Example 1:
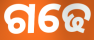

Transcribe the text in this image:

ଗଢେ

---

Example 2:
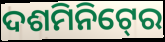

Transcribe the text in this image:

ଦଶମିନିଟ୍‍ରେ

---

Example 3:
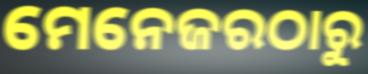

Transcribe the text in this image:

ମେନେଜରଠାରୁ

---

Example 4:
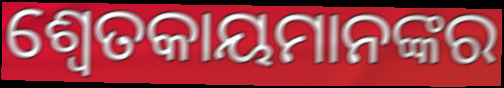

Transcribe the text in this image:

ଶ୍ବେତକାୟମାନଙ୍କର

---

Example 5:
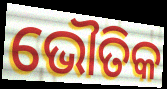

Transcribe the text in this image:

ଭୌତିକ